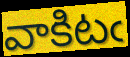
వాకిటఁ